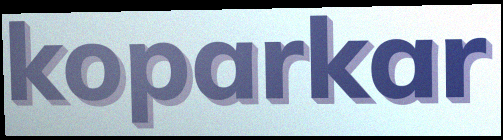
koparkar